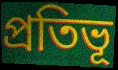
প্রতিভূ